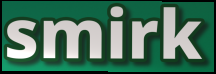
smirk